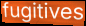
fugitives